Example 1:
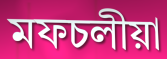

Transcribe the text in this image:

মফচলীয়া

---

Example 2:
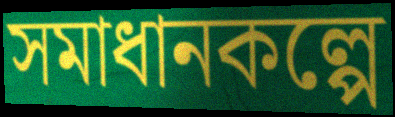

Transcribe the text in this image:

সমাধানকল্পে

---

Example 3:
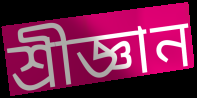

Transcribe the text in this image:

শ্ৰীজ্ঞান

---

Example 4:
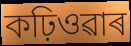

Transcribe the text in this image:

কঢ়িওৱাৰ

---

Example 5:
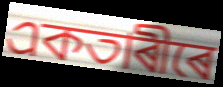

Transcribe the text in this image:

একতাৰীৰে